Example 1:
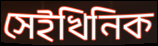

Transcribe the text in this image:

সেইখিনিক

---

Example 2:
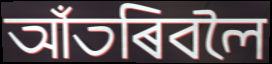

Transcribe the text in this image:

আঁতৰিবলৈ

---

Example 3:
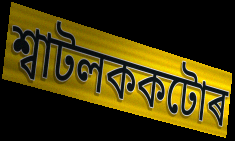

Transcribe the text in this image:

শ্বাটলককটোৰ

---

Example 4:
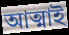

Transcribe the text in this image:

আত্মাই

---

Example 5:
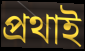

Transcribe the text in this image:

প্ৰথাই